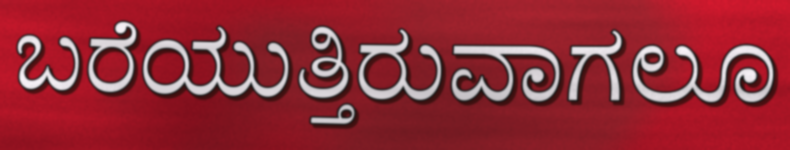
ಬರೆಯುತ್ತಿರುವಾಗಲೂ